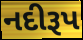
નદીરૂપ